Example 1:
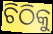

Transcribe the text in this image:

ଚିଠିକୁ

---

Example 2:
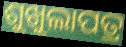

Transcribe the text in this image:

ଶୁଖୁଲାପତ୍ର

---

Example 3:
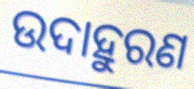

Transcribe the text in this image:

ଉଦାହୁରଣ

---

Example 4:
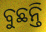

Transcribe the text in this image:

ବୁଛନ୍ତି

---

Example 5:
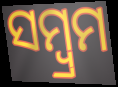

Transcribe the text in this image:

ସମ୍ବ୍ରମ